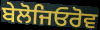
ਬੇਲੋਜਿਓਰੋਵ